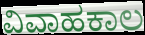
ವಿವಾಹಕಾಲ